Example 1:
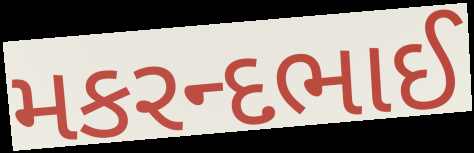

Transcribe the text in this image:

મકરન્દભાઈ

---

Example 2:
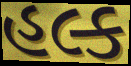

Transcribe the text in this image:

હલ્ક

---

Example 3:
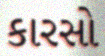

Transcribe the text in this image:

કારસો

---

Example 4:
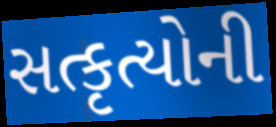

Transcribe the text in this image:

સત્કૃત્યોની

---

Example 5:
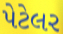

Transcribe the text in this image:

પેટેલર